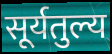
सूर्यतुल्य